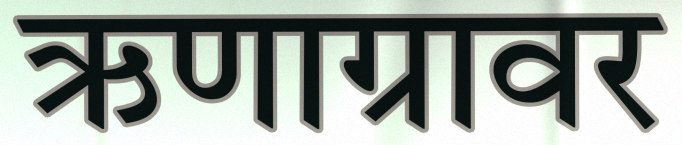
ऋणाग्रावर